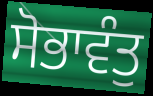
ਸੋਭਾਵੰਤੁ